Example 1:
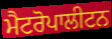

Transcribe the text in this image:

ਮੈਟਰੋਪਾਲੀਟਨ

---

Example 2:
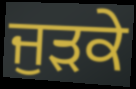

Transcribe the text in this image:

ਜੁੜਕੇ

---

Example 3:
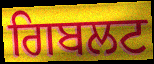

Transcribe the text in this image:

ਗਿਬਲਟ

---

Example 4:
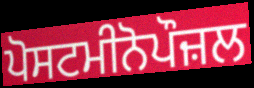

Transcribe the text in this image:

ਪੋਸਟਮੀਨੋਪੌਜ਼ਲ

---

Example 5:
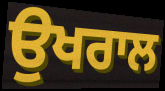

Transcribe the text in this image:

ਉਖਰਾਲ